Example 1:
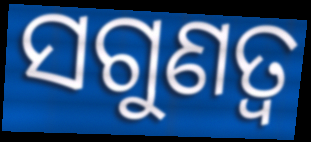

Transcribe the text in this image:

ସଗୁଣତ୍ଵ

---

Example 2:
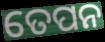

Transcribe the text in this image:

ତେପନ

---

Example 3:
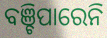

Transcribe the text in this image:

ବଞ୍ଚିପାରେନି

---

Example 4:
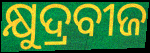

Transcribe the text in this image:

କ୍ଷୁଦ୍ରବୀଜ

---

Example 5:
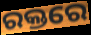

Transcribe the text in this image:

ରକ୍ତରେ